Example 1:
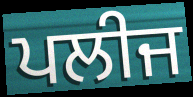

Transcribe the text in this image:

ਪਲੀਜ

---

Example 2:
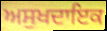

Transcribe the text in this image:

ਅਸੁਖਦਾਇਕ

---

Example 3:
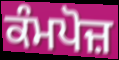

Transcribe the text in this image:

ਕੰਮਪੋਜ਼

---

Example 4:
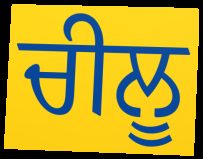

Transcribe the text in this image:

ਚੀਲੂ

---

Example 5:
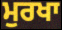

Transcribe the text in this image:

ਮੁਰਖਾ